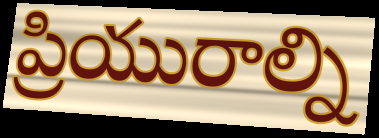
ప్రియురాల్ని